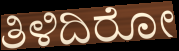
ತಿಳಿದಿರೋ